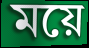
ময়ে